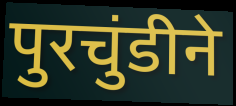
पुरचुंडीने